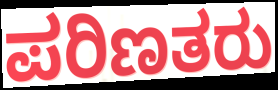
ಪರಿಣತರು